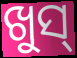
ଖୁସ୍